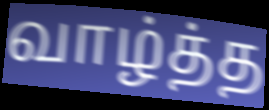
வாழ்த்த